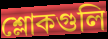
শ্লোকগুলি